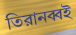
তিরানব্বই